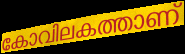
കോവിലകത്താണ്